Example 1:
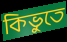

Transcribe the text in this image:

কিভুতে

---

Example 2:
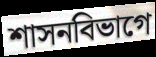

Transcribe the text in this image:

শাসনবিভাগে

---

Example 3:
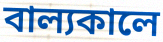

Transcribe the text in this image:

বাল্যকালে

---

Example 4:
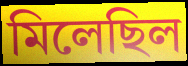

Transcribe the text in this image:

মিলেছিল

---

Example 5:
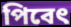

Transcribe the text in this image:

পিবেৎ